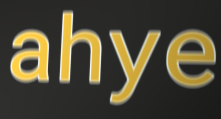
ahye